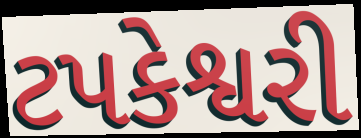
ટપકેશ્વરી